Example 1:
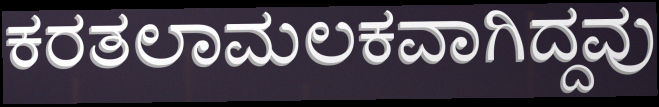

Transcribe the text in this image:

ಕರತಲಾಮಲಕವಾಗಿದ್ದವು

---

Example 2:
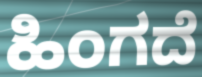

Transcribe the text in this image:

ಹಿಂಗದೆ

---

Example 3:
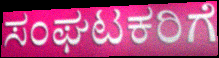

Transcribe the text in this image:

ಸಂಘಟಕರಿಗೆ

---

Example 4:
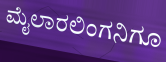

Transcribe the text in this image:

ಮೈಲಾರಲಿಂಗನಿಗೂ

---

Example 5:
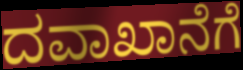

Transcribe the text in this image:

ದವಾಖಾನೆಗೆ